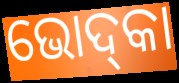
ଭୋଦ୍‌କା